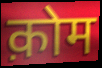
क़ोम